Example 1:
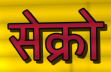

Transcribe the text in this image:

सेक्रो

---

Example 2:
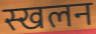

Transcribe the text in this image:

स्‍खलन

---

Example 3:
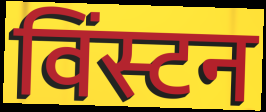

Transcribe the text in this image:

विंस्टन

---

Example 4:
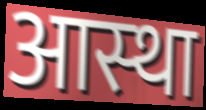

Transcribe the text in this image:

आस्‍था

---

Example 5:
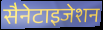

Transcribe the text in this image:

सैनेटाइजेशन